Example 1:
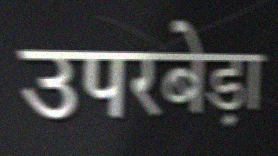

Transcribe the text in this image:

उपरबेड़ा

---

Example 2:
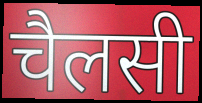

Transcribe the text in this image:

चैलसी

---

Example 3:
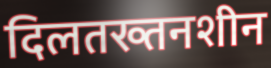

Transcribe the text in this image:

दिलतख्तनशीन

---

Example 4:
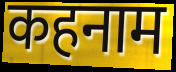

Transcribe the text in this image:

कहनाम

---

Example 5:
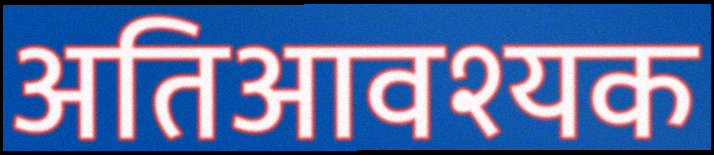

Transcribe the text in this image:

अतिआवश्यक